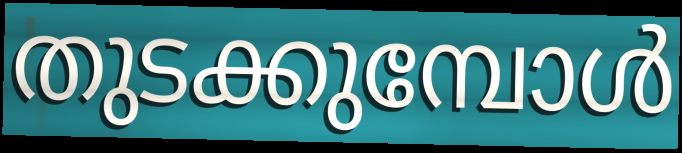
തുടക്കുമ്പോൾ